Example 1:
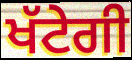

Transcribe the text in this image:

ਖੱਟੇਗੀ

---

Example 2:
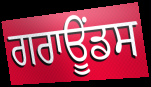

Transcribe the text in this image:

ਗਰਾਊਂਡਸ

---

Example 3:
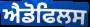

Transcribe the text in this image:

ਐਡੋਫਿਲਸ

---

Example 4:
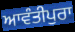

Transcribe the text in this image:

ਆਵੰਤੀਪੁਰਾ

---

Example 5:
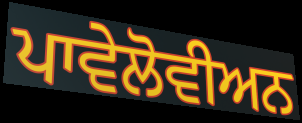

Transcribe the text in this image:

ਪਾਵੇਲੋਵੀਅਨ